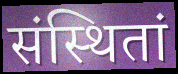
संस्थितां